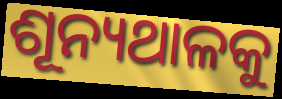
ଶୂନ୍ୟଥାଳକୁ